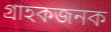
গ্ৰাহকজনক